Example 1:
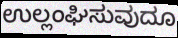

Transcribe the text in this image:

ಉಲ್ಲಂಘಿಸುವುದೂ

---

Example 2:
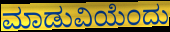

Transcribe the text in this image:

ಮಾಡುವಿಯೆಂದು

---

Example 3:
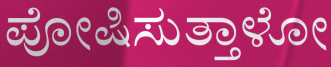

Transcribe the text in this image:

ಪೋಷಿಸುತ್ತಾಳೋ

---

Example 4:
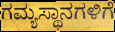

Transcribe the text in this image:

ಗಮ್ಯಸ್ಥಾನಗಳಿಗೆ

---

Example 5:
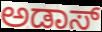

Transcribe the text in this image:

ಅಡಾಸ್